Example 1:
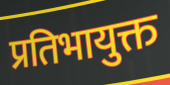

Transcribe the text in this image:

प्रतिभायुक्त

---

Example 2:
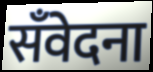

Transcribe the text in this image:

सँवेदना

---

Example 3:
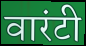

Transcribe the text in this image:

वारंटी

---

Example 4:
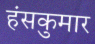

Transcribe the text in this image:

हंसकुमार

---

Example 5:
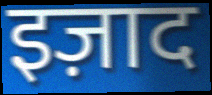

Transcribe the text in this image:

इज़ाद